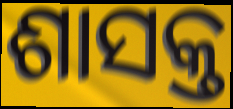
ଶାସକ୍ତ